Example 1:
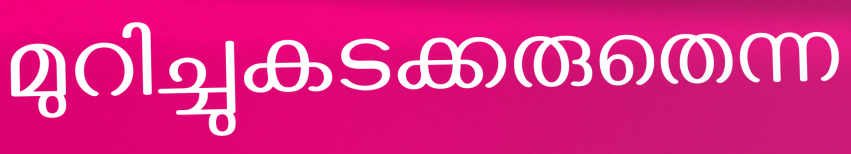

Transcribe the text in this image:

മുറിച്ചുകടക്കരുതെന്ന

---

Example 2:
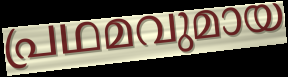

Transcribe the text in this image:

പ്രഥമവുമായ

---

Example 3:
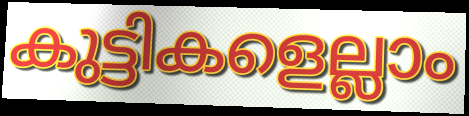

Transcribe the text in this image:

കുട്ടികളെല്ലാം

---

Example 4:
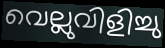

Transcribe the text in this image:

വെല്ലുവിളിച്ചു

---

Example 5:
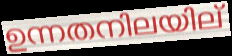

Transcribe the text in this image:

ഉന്നതനിലയില്